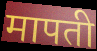
मापती